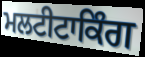
ਮਲਟੀਟਾਕਿੰਗ